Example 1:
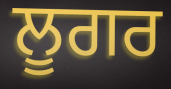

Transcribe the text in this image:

ਲੂਗਰ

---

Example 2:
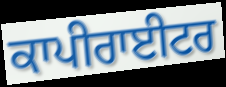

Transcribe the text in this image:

ਕਾਪੀਰਾਈਟਰ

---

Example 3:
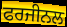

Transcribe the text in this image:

ਫਰਜੀਨਲ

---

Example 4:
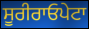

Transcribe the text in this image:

ਸੂਰੀਰਾਓਪੇਟਾ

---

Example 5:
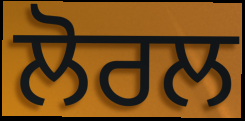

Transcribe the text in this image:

ਲੋਰਲ